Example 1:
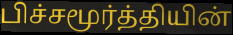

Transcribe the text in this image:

பிச்சமூர்த்தியின்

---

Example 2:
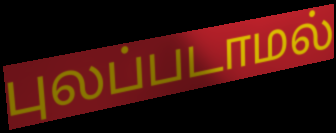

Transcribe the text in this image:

புலப்படாமல்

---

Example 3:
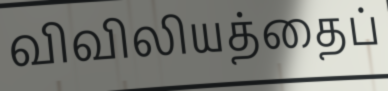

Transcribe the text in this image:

விவிலியத்தைப்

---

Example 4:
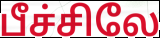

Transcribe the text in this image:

பீச்சிலே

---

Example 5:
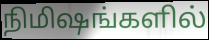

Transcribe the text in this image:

நிமிஷங்களில்